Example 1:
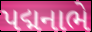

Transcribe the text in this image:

પદ્મનાભે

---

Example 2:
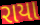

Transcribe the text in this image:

રાયા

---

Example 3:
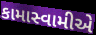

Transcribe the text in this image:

કામાસ્વામીએ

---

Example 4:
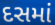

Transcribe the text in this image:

દસમાં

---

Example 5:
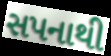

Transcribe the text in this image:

સપનાથી